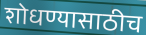
शोधण्यासाठीच